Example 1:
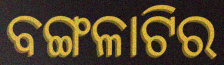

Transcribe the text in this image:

ବଙ୍ଗଳାଟିର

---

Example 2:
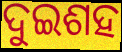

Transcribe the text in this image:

ଦୁଇଶହ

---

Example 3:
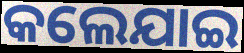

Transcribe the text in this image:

କଲେଯାଇ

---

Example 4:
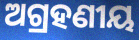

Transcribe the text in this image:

ଅଗ୍ରହଣୀୟ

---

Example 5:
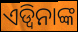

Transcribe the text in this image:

ଏଡ୍ୱିନାଙ୍କ